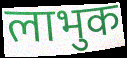
लाभुक